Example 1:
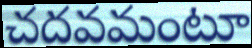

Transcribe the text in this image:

చదవమంటూ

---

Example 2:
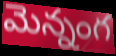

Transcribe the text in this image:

మెన్నంగ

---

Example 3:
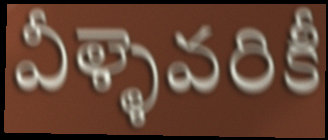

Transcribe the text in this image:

వీళ్ళెవరికీ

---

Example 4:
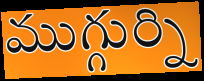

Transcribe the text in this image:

ముగ్గుర్ని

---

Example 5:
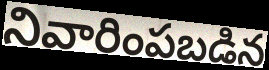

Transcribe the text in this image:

నివారింపబడిన